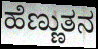
ಹೆಣ್ಣುತನ